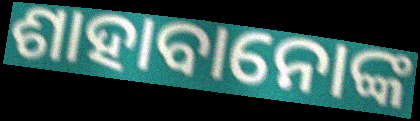
ଶାହାବାନୋଙ୍କ